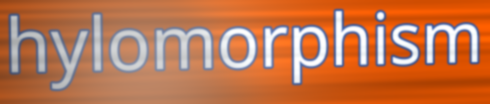
hylomorphism